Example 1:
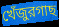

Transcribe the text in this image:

খেঁজুরগাছ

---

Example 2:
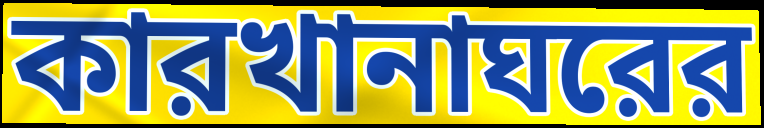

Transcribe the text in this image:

কারখানাঘরের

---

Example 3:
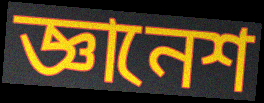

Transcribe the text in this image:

জ্ঞানেশ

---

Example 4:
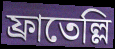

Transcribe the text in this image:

ফ্রাতেল্লি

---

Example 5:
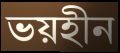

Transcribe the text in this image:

ভয়হীন